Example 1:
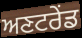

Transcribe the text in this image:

ਅਣਟਰੇਂਡ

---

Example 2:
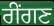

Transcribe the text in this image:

ਰੀਂਗਣ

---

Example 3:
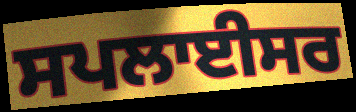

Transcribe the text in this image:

ਸਪਲਾਈਸਰ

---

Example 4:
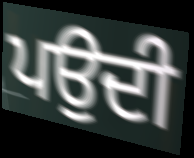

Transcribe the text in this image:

ਪਉਦੀ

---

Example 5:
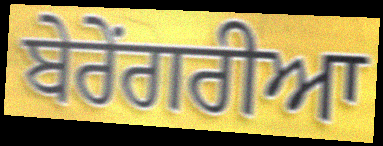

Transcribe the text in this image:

ਬੇਰੇਂਗਰੀਆ